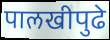
पालखीपुढे